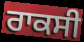
ਰਾਕਸੀ